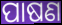
ପାଷଣ